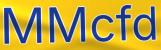
MMcfd